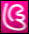
ഭൂ